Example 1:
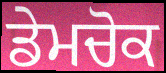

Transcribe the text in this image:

ਡੇਮਚੋਕ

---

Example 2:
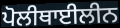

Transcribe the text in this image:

ਪੋਲੀਥਾਈਲੀਨ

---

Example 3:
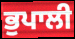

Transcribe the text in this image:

ਭੁਪਾਲੀ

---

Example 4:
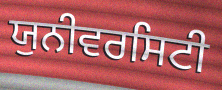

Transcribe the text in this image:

ਯੁਨੀਵਰਸਿਟੀ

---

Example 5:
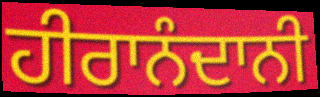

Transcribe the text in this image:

ਹੀਰਾਨੰਦਾਨੀ